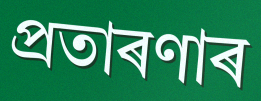
প্ৰতাৰণাৰ